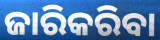
ଜାରିକରିବା